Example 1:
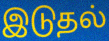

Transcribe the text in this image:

இடுதல்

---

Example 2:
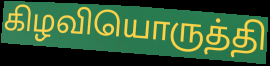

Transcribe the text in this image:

கிழவியொருத்தி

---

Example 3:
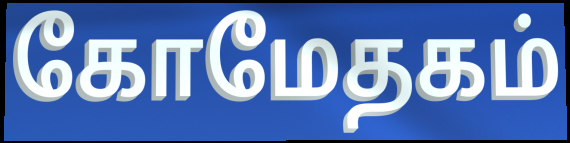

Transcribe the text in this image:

கோமேதகம்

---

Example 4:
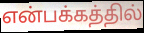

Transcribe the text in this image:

என்பக்கத்தில்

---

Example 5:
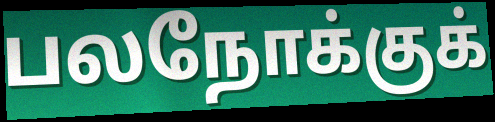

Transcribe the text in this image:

பலநோக்குக்